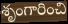
శృంగారించి